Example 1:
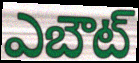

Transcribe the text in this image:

ఎబౌట్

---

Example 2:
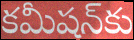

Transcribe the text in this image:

కమీషన్‌కు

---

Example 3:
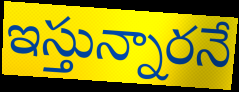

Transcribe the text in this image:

ఇస్తున్నారనే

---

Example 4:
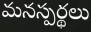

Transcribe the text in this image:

మనస్పర్థలు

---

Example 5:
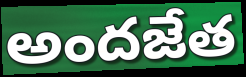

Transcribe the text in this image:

అందజేత